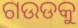
ଗଉଡକୁ